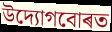
উদ্যোগবোৰত